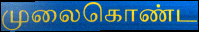
முலைகொண்ட